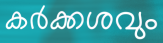
കർക്കശവും